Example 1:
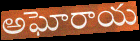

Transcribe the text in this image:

అఘోరాయ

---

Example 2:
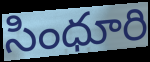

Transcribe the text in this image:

సింధూరి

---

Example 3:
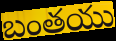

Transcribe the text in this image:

బంతయు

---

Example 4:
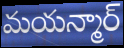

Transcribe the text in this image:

మయన్మార్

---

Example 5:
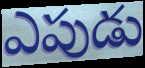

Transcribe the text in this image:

ఎపుడు